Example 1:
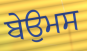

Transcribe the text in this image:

ਬੇਉਮਸ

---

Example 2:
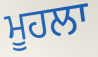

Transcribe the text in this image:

ਮੂਹਲਾ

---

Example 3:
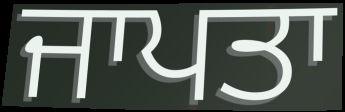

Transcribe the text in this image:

ਜਾਪਤਾ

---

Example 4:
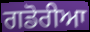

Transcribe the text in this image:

ਗਡੋਰੀਆ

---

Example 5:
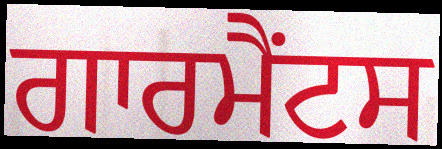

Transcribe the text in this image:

ਗਾਰਮੈਂਟਸ